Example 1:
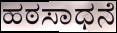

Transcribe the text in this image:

ಹಠಸಾಧನೆ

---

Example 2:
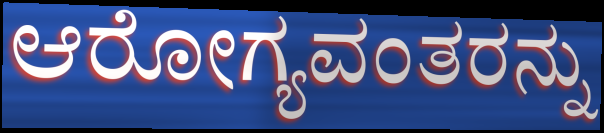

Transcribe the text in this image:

ಆರೋಗ್ಯವಂತರನ್ನು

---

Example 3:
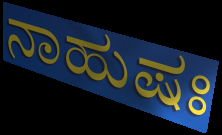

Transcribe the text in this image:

ನಾಹುಷಃ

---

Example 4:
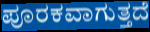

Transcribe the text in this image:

ಪೂರಕವಾಗುತ್ತದೆ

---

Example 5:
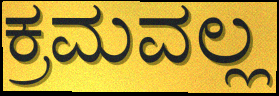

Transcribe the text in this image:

ಕ್ರಮವಲ್ಲ